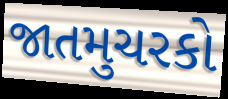
જાતમુચરકો